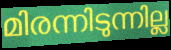
മിരന്നിടുന്നില്ല